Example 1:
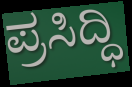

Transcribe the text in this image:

ಪ್ರಸಿದ್ಧಿ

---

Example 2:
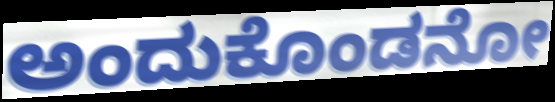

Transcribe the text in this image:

ಅಂದುಕೊಂಡನೋ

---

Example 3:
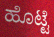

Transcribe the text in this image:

ಹೊಟ್ಟೆ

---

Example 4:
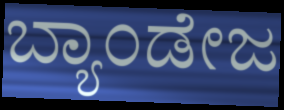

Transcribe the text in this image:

ಬ್ಯಾಂಡೇಜ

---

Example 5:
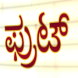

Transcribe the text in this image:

ಫ್ರುಟ್